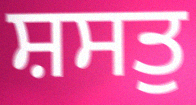
ਸ਼ਸਤੁ